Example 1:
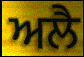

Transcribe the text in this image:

ਅਲੈ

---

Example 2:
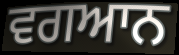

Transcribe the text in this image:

ਵਗਆਨ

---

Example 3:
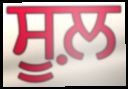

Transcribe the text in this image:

ਸੂਲ਼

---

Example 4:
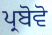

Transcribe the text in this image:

ਪ੍ਰਬੋਵੋ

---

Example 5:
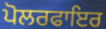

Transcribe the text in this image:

ਪੋਲਰਫਾਇਰ